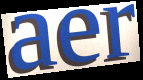
aer